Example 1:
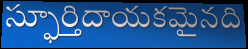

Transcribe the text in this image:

స్ఫూర్తిదాయకమైనది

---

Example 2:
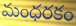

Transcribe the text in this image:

మంధరకం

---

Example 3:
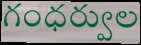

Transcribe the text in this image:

గంధర్వుల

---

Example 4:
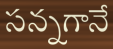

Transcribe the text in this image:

సన్నగానే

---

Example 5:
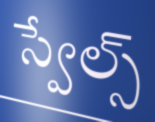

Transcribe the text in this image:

స్వేల్స్